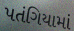
પતંગિયામાં